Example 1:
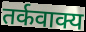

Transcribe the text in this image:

तर्कवाक्य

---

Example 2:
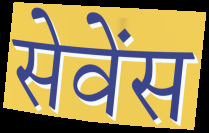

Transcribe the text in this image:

सेवेंस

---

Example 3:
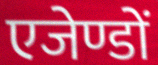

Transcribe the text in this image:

एजेण्डों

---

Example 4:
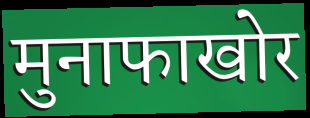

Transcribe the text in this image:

मुनाफाखोर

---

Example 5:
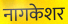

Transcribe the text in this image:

नागकेशर